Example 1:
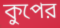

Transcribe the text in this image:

কুপের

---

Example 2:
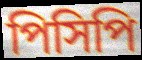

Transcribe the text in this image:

পিসিপি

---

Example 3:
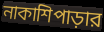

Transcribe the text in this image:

নাকাশিপাড়ার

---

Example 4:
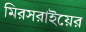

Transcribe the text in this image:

মিরসরাইয়ের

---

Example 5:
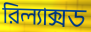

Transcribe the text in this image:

রিল্যাক্সড